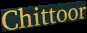
Chittoor